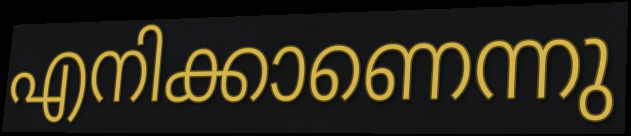
എനിക്കാണെന്നു